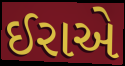
ઈરાએ